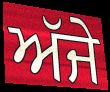
ਅੱਜੇ